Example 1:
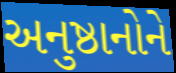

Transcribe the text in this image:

અનુષ્ઠાનોને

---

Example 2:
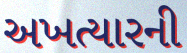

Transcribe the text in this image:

અખત્યારની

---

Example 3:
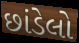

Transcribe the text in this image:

છાંડેલો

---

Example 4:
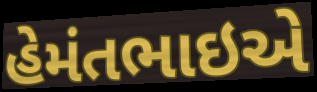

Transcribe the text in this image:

હેમંતભાઇએ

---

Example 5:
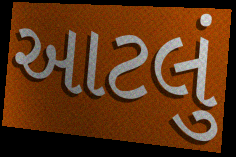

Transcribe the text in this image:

આટલું